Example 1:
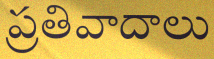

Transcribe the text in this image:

ప్రతివాదాలు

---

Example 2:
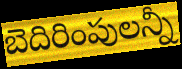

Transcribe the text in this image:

బెదిరింపులన్నీ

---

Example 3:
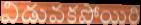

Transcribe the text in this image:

విడువకపోయిరి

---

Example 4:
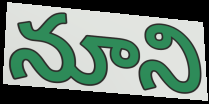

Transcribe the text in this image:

నూని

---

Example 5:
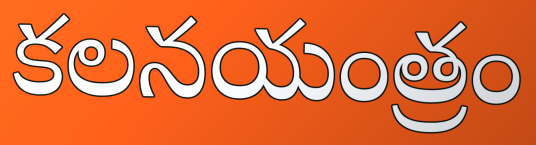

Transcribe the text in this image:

కలనయంత్రం